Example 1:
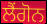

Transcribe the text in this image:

ਲੈਂਗੋਨ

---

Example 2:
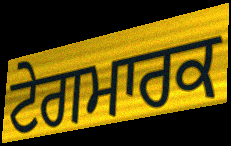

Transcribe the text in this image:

ਟੇਗਮਾਰਕ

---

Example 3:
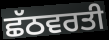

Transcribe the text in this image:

ਛੱਠਵਰਤੀ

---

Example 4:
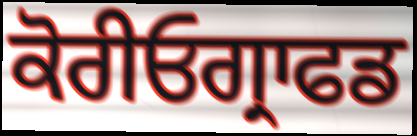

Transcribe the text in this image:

ਕੋਰੀਓਗ੍ਰਾਫਡ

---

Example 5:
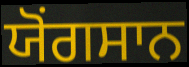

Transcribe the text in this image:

ਯੋਂਗਸਾਨ